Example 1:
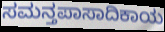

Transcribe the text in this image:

ಸಮನ್ತಪಾಸಾದಿಕಾಯ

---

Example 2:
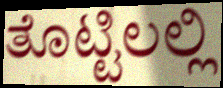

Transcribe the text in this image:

ತೊಟ್ಟಿಲಲ್ಲಿ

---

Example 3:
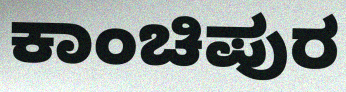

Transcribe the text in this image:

ಕಾಂಚಿಪುರ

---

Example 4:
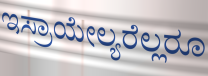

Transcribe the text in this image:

ಇಸ್ರಾಯೇಲ್ಯರೆಲ್ಲರೂ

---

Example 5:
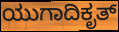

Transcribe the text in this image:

ಯುಗಾದಿಕೃತ್